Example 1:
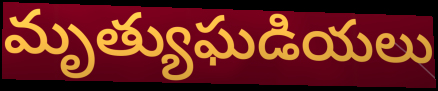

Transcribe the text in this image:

మృత్యుఘడియలు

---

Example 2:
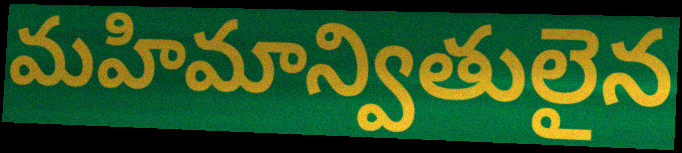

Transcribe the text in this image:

మహిమాన్వితులైన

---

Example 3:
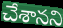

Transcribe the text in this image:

చేశానని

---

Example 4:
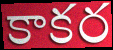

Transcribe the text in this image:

కాకర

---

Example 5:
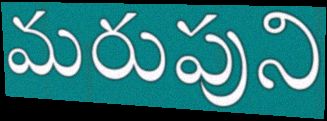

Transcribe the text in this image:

మరుపుని